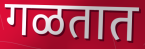
गळतात